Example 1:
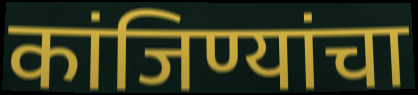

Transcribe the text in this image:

कांजिण्यांचा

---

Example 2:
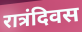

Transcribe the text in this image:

रात्रंदिवस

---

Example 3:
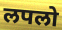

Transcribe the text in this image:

लपलो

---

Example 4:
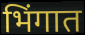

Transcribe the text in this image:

भिंगात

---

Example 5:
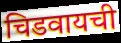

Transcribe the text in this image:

चिडवायची